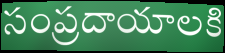
సంప్రదాయాలకి